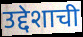
उद्देशाची